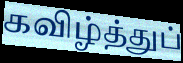
கவிழ்த்துப்